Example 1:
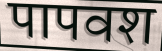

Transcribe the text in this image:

पापवश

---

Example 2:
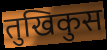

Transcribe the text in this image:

तुखिकुस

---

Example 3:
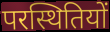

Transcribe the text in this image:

परस्थितियों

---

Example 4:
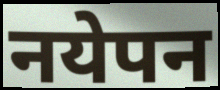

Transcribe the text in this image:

नयेपन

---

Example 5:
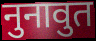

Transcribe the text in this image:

नुनावुत